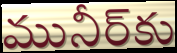
మునీర్‌కు